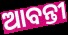
ଆବନ୍ତୀ